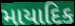
માયાદિક